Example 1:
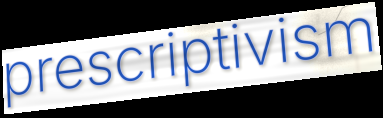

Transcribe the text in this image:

prescriptivism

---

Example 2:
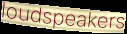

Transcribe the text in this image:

loudspeakers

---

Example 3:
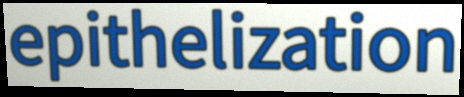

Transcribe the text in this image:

epithelization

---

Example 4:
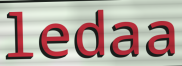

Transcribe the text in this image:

ledaa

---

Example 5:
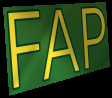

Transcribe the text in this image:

FAP